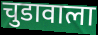
चुडावाला